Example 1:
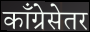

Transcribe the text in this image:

काँग्रेसेतर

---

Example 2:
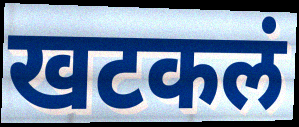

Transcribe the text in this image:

खटकलं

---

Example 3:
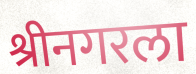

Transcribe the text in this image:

श्रीनगरला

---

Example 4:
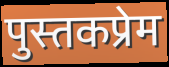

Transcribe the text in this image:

पुस्तकप्रेम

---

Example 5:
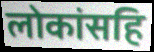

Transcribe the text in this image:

लोकांसहि